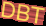
DBT